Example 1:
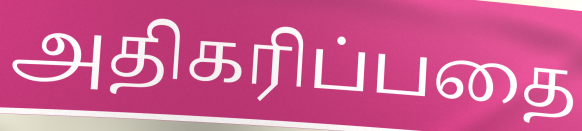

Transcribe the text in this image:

அதிகரிப்பதை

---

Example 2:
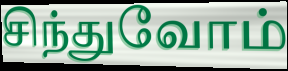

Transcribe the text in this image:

சிந்துவோம்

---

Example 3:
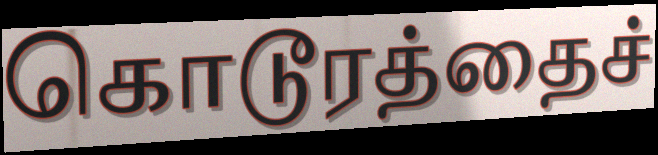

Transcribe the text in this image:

கொடூரத்தைச்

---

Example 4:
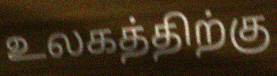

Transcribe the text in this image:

உலகத்திற்கு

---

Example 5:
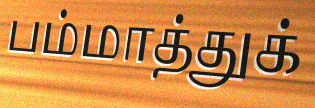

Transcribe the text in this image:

பம்மாத்துக்